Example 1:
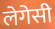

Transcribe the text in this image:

लेगेसी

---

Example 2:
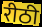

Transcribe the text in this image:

रीठी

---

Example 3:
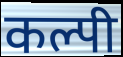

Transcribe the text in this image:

कल्पी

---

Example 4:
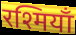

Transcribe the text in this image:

रश्मियाँ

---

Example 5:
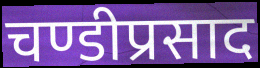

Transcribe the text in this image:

चण्डीप्रसाद